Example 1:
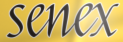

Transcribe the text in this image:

senex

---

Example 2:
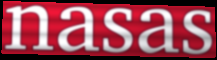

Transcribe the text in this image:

nasas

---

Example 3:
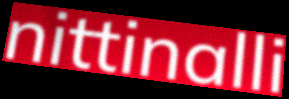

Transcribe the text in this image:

nittinalli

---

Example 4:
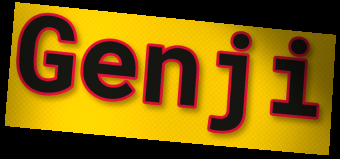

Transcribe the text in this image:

Genji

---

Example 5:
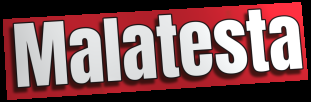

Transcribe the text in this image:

Malatesta